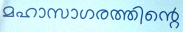
മഹാസാഗരത്തിന്റെ